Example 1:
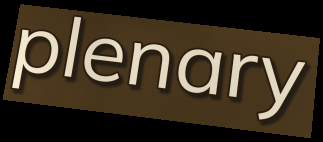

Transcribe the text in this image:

plenary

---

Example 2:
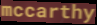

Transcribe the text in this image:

mccarthy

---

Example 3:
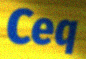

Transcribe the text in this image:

Ceq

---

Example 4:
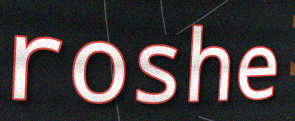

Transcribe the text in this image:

roshe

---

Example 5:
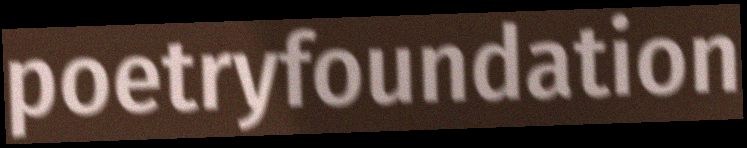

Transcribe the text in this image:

poetryfoundation